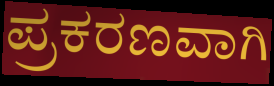
ಪ್ರಕರಣವಾಗಿ